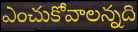
ఎంచుకోవాలన్నది